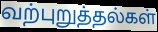
வற்புறுத்தல்கள்